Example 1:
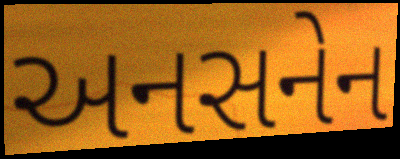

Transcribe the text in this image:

અનસનેન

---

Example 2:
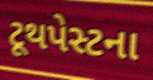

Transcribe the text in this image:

ટૂથપેસ્ટના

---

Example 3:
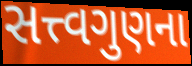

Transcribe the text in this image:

સત્ત્વગુણના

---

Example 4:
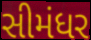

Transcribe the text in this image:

સીમંધર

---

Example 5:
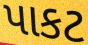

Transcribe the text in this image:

પાકટ